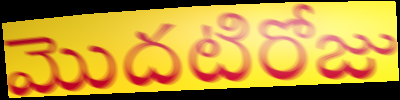
మొదటిరోజు